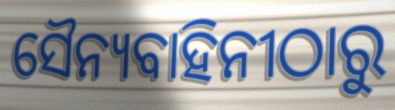
ସୈନ୍ୟବାହିନୀଠାରୁ